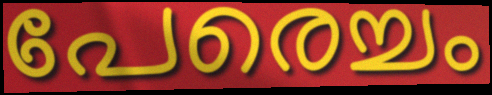
പേരെച്ചം